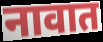
नावात